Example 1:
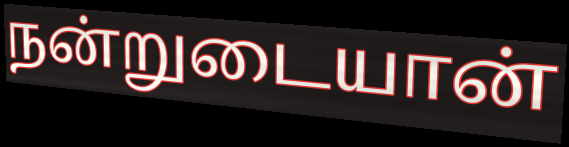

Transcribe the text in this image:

நன்றுடையான்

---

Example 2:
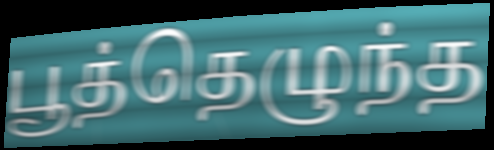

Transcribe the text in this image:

பூத்தெழுந்த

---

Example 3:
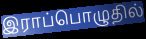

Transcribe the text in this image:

இராப்பொழுதில்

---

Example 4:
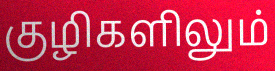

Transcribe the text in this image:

குழிகளிலும்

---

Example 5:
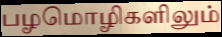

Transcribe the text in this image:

பழமொழிகளிலும்